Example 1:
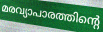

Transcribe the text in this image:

മരവ്യാപാരത്തിന്റെ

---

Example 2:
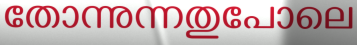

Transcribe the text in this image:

തോന്നുന്നതുപോലെ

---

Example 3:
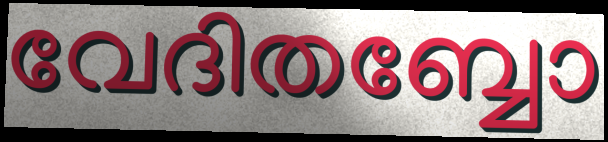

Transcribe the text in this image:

വേദിതബ്ബോ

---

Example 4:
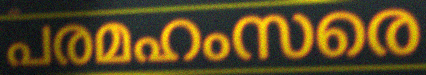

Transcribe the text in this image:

പരമഹംസരെ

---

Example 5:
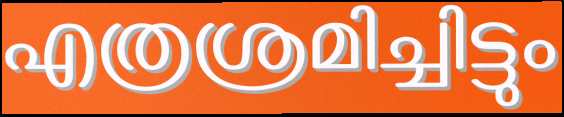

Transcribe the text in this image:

എത്രശ്രമിച്ചിട്ടും